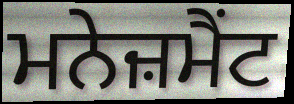
ਮਨੇਜ਼ਮੈਂਟ